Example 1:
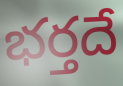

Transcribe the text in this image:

భర్తదే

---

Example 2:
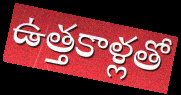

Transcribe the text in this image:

ఉత్తకాళ్లతో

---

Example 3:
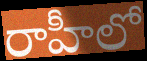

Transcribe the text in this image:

రాహీలో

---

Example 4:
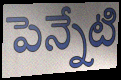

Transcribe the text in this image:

పెన్నేటి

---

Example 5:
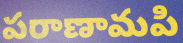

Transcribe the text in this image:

పరాణామపి